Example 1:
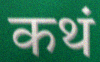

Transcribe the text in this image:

कथं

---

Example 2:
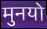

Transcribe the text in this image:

मुनयो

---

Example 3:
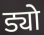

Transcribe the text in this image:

ड्यो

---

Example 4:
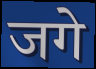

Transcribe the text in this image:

जगे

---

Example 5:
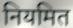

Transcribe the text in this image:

नियमित